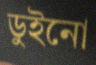
ডুইনো